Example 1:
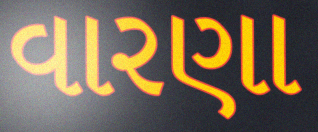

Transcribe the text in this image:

વારણા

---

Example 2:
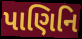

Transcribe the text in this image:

પાણિનિ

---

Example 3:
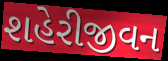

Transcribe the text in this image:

શહેરીજીવન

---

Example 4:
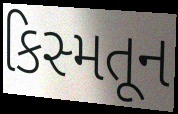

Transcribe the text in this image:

કિસ્મતૂન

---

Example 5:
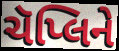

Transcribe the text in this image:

ચૅપ્લિને